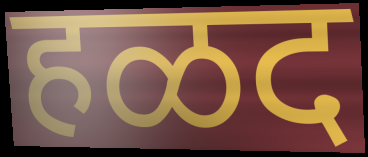
हळद